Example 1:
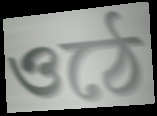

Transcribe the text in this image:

ওঠে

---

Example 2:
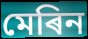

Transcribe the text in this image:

মেৰিন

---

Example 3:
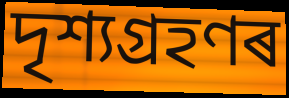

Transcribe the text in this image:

দৃশ্যগ্ৰহণৰ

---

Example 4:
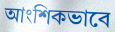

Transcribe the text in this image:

আংশিকভাবে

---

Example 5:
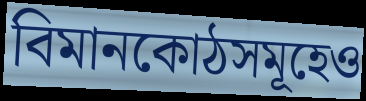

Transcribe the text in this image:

বিমানকোঠসমূহেও